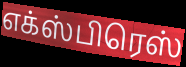
எக்ஸ்பிரெஸ்